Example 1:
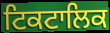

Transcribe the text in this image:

ਟਿਕਟਾਲਿਕ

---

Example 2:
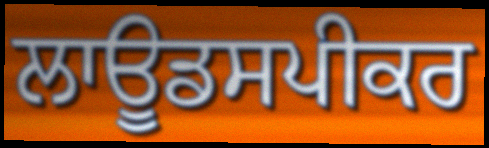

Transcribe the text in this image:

ਲਾਊਡਸਪੀਕਰ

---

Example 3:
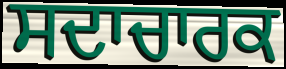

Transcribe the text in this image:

ਸਦਾਚਾਰਕ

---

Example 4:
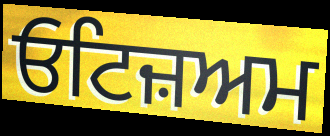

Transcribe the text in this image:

ਓਟਿਜ਼ਅਮ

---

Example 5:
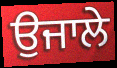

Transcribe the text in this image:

ਉਜਾਲੇ